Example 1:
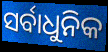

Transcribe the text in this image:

ସର୍ବାଧୁନିକ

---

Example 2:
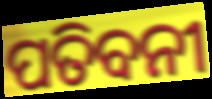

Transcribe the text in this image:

ପତିବନୀ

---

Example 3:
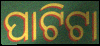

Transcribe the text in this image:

ପାଟିଟା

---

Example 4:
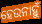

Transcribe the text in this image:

ହେଉନାହୁଁ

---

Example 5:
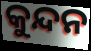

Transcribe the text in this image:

କୁନ୍ଦନ